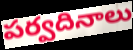
పర్వదినాలు